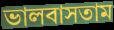
ভালবাসতাম